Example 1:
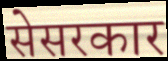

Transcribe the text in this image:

सेसरकार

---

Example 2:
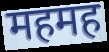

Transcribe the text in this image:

महमह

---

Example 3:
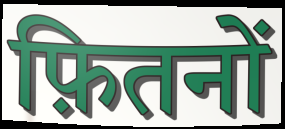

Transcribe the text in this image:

फ़ितनों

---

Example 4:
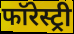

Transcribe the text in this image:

फॉरेस्ट्री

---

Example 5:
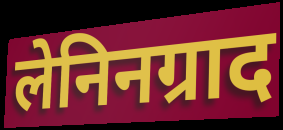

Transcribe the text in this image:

लेनिनग्राद